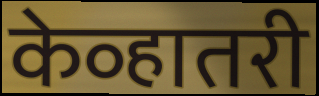
केव्हातरी